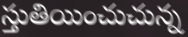
స్తుతియించుచున్న